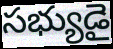
సభ్యుడై